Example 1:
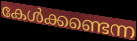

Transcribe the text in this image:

കേൾക്കണ്ടെന്ന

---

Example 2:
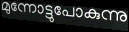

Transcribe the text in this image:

മുന്നോട്ടുപോകുന്നു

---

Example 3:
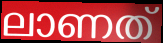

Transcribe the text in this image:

ലാണത്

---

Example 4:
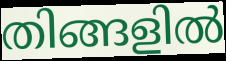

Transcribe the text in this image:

തിങ്ങളിൽ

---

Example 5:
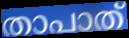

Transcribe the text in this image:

താപാത്